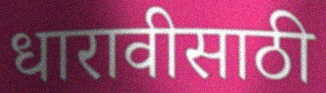
धारावीसाठी